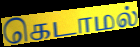
கெடாமல்